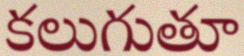
కలుగుతూ